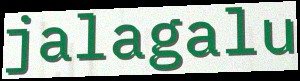
jalagalu